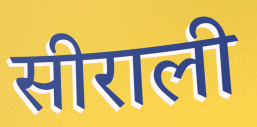
सीराली